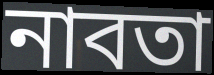
নাবতা